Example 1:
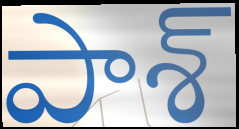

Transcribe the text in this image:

పాశ్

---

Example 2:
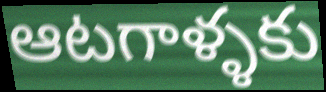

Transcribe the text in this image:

ఆటగాళ్ళకు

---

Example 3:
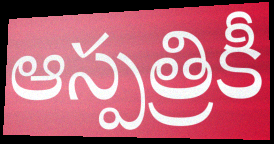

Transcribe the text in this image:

ఆస్పత్రికీ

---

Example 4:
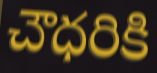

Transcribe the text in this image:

చౌధరికి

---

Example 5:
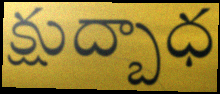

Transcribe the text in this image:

క్షుద్బాధ